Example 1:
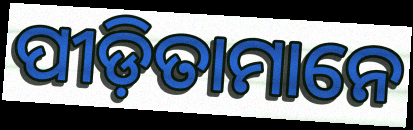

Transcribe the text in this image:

ପୀଡ଼ିତାମାନେ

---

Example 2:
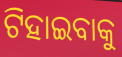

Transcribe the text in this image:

ଟିହାଇବାକୁ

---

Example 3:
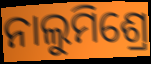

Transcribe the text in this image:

ନାଲୁମିଶ୍ରେ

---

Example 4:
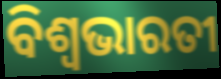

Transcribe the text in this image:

ବିଶ୍ୱଭାରତୀ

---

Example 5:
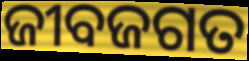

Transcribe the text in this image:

ଜୀବଜଗତ